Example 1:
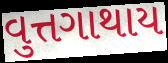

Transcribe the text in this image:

વુત્તગાથાય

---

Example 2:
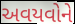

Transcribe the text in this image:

અવયવોને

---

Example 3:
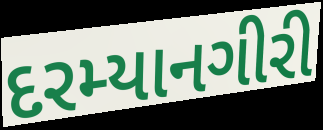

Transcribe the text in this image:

દરમ્યાનગીરી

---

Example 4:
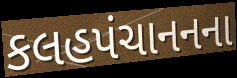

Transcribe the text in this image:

કલહપંચાનનના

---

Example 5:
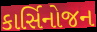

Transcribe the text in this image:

કાર્સિનોજન